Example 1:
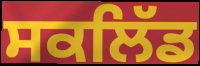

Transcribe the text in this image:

ਸਕਲਿੱਡ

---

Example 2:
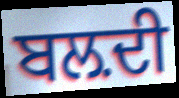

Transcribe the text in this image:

ਬਲ਼ਦੀ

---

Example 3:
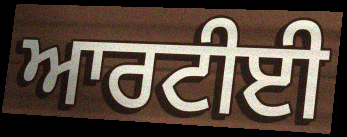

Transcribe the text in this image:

ਆਰਟੀਈ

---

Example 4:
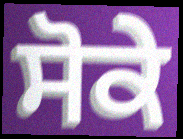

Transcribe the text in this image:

ਸੋਕੇ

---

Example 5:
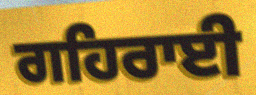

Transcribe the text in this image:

ਗਹਿਰਾਈ